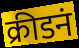
क्रीडनं